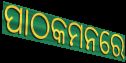
ପାଠକମନରେ